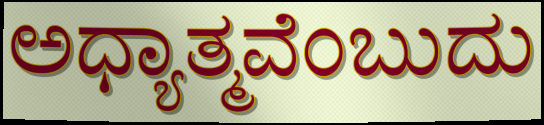
ಅಧ್ಯಾತ್ಮವೆಂಬುದು